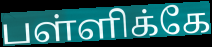
பள்ளிக்கே